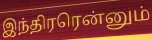
இந்திரரென்னும்